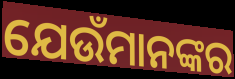
ଯେଉଁମାନଙ୍କର